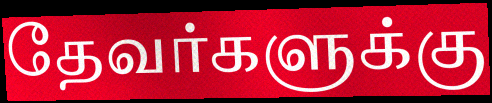
தேவர்களுக்கு